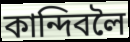
কান্দিবলৈ